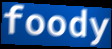
foody